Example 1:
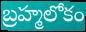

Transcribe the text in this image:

బ్రహ్మలోకం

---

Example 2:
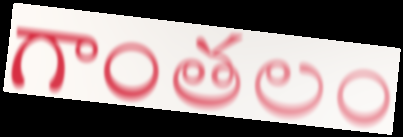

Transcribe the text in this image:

గాంతలం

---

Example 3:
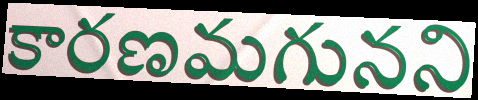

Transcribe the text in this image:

కారణమగునని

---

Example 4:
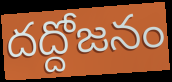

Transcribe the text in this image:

దద్దోజనం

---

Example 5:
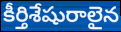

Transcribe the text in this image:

కీర్తిశేషురాలైన